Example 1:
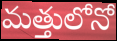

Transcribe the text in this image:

మత్తులోనో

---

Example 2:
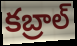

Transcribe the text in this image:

కబ్రాల్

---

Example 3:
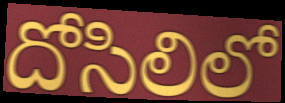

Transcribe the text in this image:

దోసిలిలో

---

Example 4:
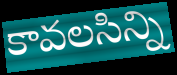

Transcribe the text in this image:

కావలసిన్ని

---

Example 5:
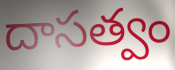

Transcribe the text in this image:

దాసత్వం